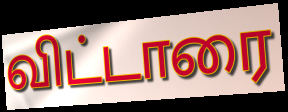
விட்டாரை